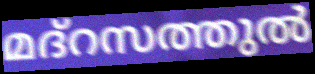
മദ്റസത്തുൽ